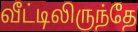
வீட்டிலிருந்தே